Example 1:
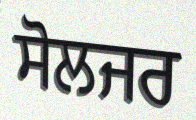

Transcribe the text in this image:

ਸੋਲਜਰ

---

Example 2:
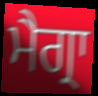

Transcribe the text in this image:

ਮੈਗ੍ਰਾ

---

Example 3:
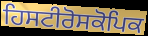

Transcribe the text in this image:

ਹਿਸਟੀਰੋਸਕੋਪਿਕ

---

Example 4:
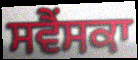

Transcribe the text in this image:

ਸਵੈਂਸਕਾ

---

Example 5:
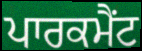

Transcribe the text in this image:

ਪਾਰਕਮੈਂਟ